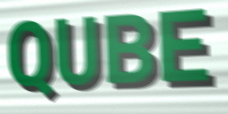
QUBE